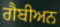
ਗੈਬੀਅਨ